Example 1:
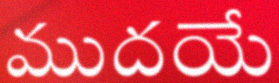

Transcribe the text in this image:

ముదయే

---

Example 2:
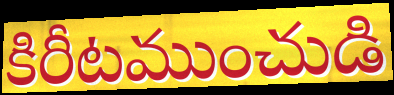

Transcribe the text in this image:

కిరీటముంచుడి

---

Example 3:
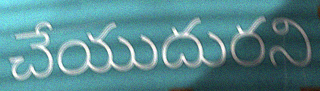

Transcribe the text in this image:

చేయుదురని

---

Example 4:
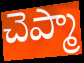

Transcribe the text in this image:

చెప్మా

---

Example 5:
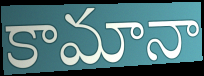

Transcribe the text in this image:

కామానా